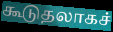
கூடுதலாகச்